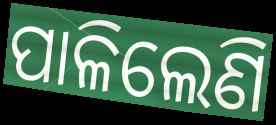
ପାଳିଲେଣି